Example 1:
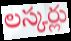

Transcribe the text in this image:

లస్కర్లు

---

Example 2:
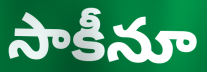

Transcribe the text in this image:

సాకీనూ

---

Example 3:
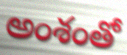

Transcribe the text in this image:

అంశంతో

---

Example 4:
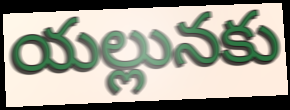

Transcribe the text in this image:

యల్లునకు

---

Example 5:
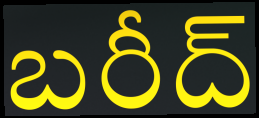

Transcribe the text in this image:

బరీద్